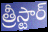
త్రీస్టార్